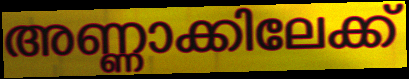
അണ്ണാക്കിലേക്ക്